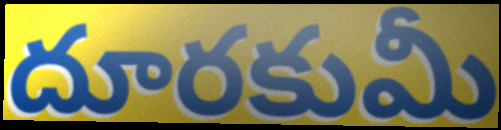
దూరకుమీ